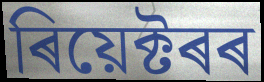
ৰিয়েক্টৰৰ